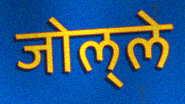
जोल्ले